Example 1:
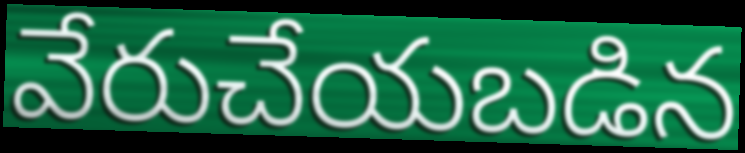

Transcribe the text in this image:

వేరుచేయబడిన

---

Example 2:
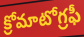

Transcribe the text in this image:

క్రోమాటోగ్రఫీ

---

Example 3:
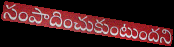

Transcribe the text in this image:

సంపాదించుకుంటుందని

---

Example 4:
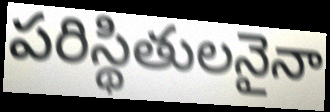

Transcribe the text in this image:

పరిస్థితులనైనా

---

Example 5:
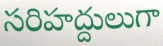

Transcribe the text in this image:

సరిహద్దులుగా